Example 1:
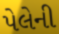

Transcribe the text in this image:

પેલેની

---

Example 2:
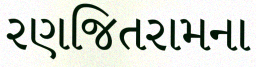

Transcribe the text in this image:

રણજિતરામના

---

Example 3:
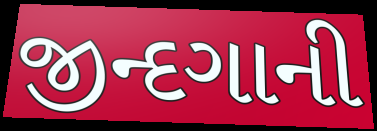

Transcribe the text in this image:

જીન્દગાની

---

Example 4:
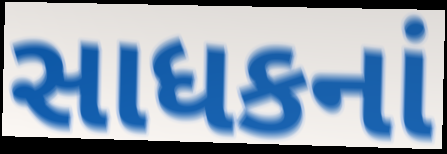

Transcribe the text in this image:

સાધકનાં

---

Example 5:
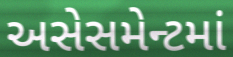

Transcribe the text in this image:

અસેસમેન્ટમાં